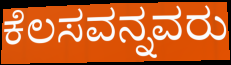
ಕೆಲಸವನ್ನವರು